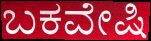
ಬಕವೇಷಿ